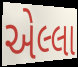
એલ્લા